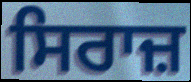
ਸਿਰਾਜ਼